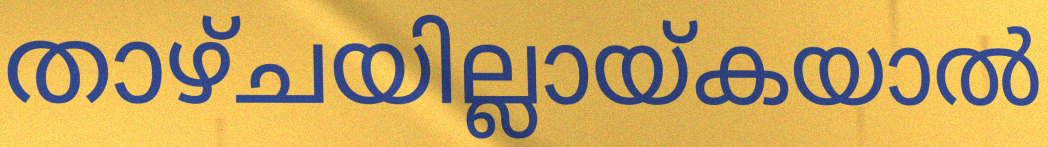
താഴ്ചയില്ലായ്കയാൽ